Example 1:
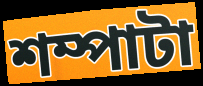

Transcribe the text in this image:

শম্পাটা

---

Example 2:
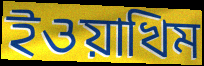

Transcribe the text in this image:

ইওয়াখিম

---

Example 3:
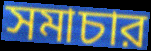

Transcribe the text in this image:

সমাচার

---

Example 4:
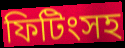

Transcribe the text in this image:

ফিটিংসহ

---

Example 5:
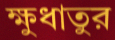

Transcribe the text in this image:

ক্ষুধাতুর